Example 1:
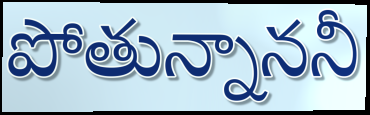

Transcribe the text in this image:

పోతున్నాననీ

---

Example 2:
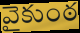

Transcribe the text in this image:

వైకుంఠ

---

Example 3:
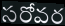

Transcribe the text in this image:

సరోవర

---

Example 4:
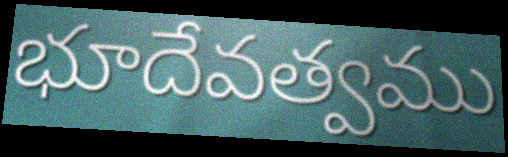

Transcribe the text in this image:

భూదేవత్వము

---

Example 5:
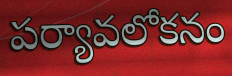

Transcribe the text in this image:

పర్యావలోకనం